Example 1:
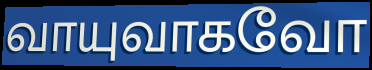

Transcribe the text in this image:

வாயுவாகவோ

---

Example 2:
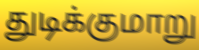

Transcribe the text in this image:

துடிக்குமாறு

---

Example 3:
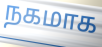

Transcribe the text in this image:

நகமாக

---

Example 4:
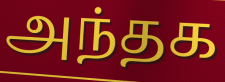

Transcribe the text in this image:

அந்தக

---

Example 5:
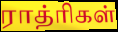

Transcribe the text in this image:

ராத்ரிகள்